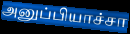
அனுப்பியாச்சா